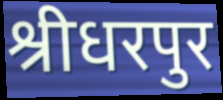
श्रीधरपुर